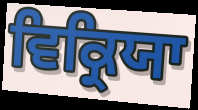
ਵਿਕ੍ਰਿਯਾ